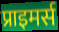
प्राइमर्स